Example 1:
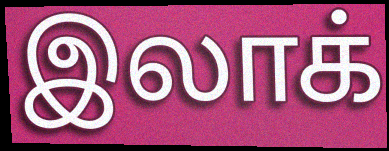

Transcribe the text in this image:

இலாக்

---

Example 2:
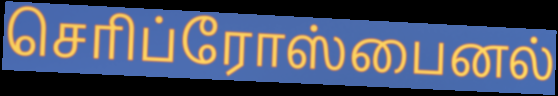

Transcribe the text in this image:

செரிப்ரோஸ்பைனல்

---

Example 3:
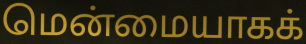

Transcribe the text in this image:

மென்மையாகக்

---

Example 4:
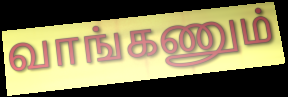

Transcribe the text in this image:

வாங்கணும்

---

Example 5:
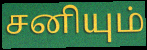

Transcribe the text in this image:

சனியும்